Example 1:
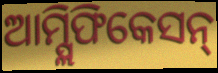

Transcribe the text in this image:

ଆମ୍ପ୍ଲିଫିକେସନ୍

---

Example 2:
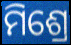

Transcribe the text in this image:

ମିଶ୍ରେ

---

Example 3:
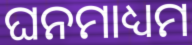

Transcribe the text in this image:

ଘନମାଧ୍ୟମ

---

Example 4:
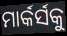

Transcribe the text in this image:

ମାର୍କର୍ସକୁ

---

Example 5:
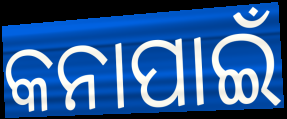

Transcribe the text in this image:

କନାପାଇଁ